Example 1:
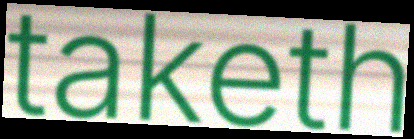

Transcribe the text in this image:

taketh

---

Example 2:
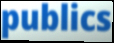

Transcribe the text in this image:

publics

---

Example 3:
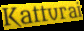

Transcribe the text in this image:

Katturai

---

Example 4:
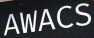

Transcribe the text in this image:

AWACS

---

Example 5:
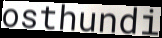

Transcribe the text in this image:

osthundi